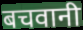
बचवानी